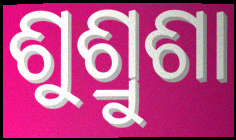
ଶୁଶ୍ରୁଶା